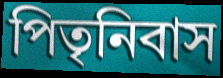
পিতৃনিবাস